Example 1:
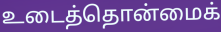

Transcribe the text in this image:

உடைத்தொன்மைக்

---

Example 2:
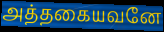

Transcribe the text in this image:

அத்தகையவனே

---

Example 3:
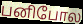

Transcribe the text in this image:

பனிபோல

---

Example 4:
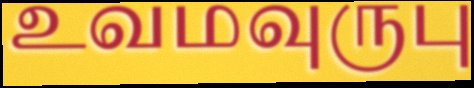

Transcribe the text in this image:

உவமவுருபு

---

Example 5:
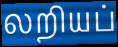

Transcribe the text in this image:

லறியப்